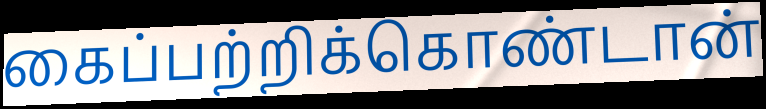
கைப்பற்றிக்கொண்டான்